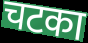
चटका